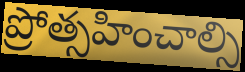
ప్రోత్సహించాల్సి